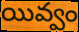
యివ్వం